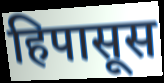
हिपासूस